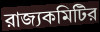
রাজ্যকমিটির